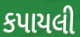
કપાયલી